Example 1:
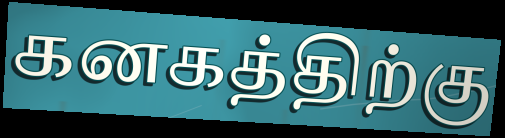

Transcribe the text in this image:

கனகத்திற்கு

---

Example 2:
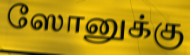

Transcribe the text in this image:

ஸோனுக்கு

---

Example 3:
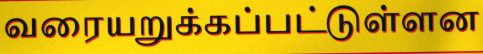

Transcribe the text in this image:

வரையறுக்கப்பட்டுள்ளன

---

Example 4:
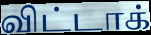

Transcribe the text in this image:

விட்டாக்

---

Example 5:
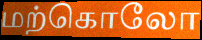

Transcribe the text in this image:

மற்கொலோ